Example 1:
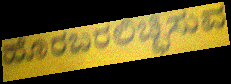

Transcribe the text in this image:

ಹೊರಬರಲಿಚ್ಛಿಸುವ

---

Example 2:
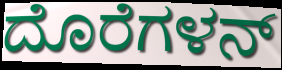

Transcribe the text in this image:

ದೊರೆಗಳನ್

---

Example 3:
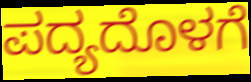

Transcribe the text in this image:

ಪದ್ಯದೊಳಗೆ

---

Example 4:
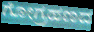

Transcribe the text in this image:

ಗೋಗ್ರಹಣದ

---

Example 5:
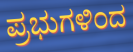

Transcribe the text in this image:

ಪ್ರಭುಗಳಿಂದ